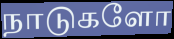
நாடுகளோ